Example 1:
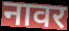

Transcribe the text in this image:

नावर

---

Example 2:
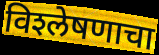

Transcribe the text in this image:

विश्‍लेषणाचा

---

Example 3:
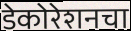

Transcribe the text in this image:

डेकोरेशनचा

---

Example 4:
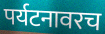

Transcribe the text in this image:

पर्यटनावरच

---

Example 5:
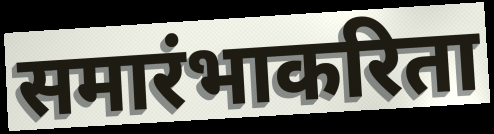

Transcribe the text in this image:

समारंभाकरिता